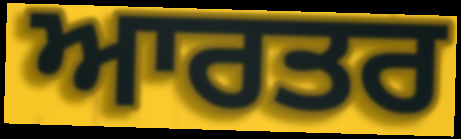
ਆਰਤਰ